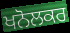
ਖਨੋਲਕਰ